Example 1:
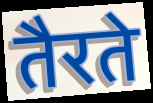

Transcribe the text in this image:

तैरते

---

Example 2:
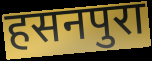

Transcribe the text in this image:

हसनपुरा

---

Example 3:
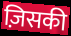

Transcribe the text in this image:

ज़िसकी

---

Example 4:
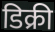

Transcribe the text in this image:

डिक्री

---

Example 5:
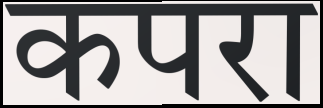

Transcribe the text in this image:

कपरा